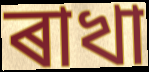
ৰাখা